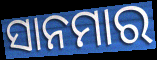
ସାନମାର